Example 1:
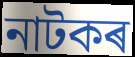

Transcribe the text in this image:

নাটকৰ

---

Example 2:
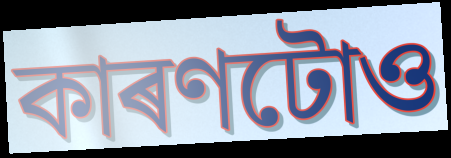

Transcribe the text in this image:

কাৰণটোও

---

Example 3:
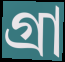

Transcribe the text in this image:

গ্ৰা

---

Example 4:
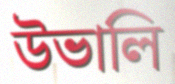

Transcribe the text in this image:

উভালি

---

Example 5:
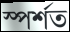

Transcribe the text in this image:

স্পৰ্শত